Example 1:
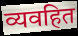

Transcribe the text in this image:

व्यवहित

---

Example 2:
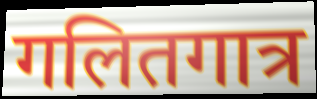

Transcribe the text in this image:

गलितगात्र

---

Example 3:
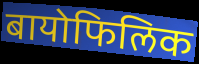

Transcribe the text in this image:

बायोफिलिक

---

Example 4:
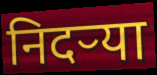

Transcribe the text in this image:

निदऱ्या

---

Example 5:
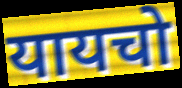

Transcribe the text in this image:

यायचो